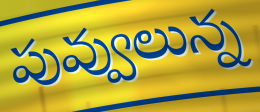
పువ్వులున్న